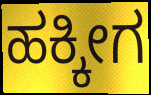
ಹಕ್ಕೀಗ